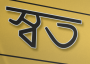
স্বত